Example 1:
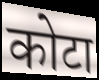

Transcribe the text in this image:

कोटा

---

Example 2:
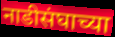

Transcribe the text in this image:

नाडीसंघाच्या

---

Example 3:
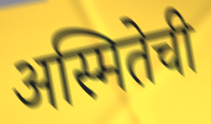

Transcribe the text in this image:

अस्मितेची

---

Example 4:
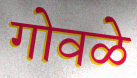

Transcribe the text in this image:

गोवळे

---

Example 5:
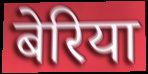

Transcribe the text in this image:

बेरिया